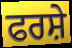
ਫਰਸ਼ੇ